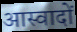
आस्वादों